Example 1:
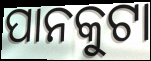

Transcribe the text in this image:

ପାନକୁଟା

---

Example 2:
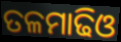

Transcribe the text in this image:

ତଳମାଢିଓ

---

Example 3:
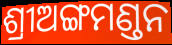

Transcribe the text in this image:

ଶ୍ରୀଅଙ୍ଗମଣ୍ଡନ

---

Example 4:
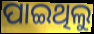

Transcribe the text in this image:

ପାଇଥିଲୁ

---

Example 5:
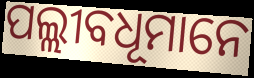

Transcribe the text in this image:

ପଲ୍ଲୀବଧୂମାନେ